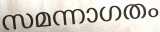
സമന്നാഗതം